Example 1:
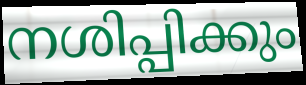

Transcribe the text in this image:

നശിപ്പിക്കും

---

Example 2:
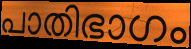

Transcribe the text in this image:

പാതിഭാഗം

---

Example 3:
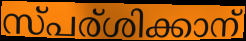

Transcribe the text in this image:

സ്പര്ശിക്കാന്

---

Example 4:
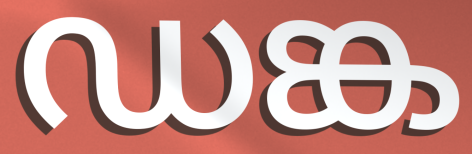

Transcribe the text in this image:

ഡങ്ക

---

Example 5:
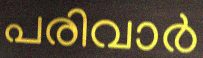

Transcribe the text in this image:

പരിവാർ